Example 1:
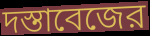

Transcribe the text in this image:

দস্তাবেজের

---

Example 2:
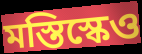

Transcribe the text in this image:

মস্তিস্কেও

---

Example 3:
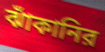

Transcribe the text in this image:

ঝাঁকানির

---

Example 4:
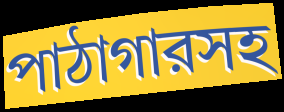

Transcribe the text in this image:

পাঠাগারসহ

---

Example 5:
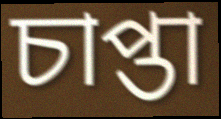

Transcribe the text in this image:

চাপ্তা